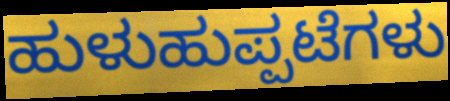
ಹುಳುಹುಪ್ಪಟೆಗಳು